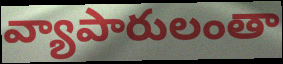
వ్యాపారులంతా